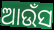
ଆଉଁସ